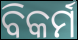
ବିକର୍ମ